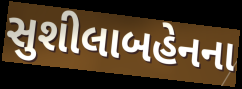
સુશીલાબહેનના